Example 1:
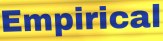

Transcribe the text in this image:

Empirical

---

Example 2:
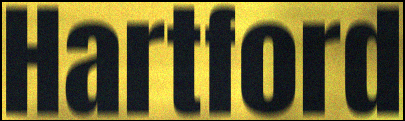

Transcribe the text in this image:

Hartford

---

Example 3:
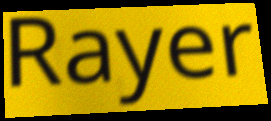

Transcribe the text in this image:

Rayer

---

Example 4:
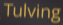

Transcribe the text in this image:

Tulving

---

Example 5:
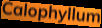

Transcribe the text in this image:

Calophyllum